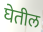
घेतील